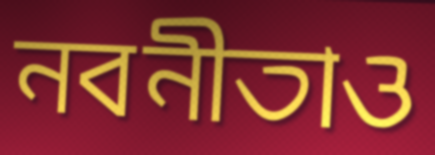
নবনীতাও